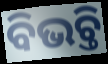
ବିଭଚ୍ତି